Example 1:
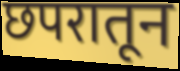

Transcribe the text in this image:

छपरातून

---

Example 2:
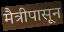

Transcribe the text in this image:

मैत्रीपासून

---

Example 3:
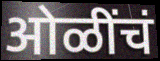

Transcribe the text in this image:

ओळींचं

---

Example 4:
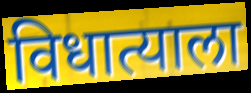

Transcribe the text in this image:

विधात्याला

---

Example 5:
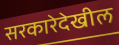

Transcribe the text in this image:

सरकारेदेखील